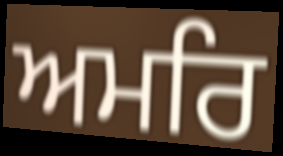
ਅਮਰਿ